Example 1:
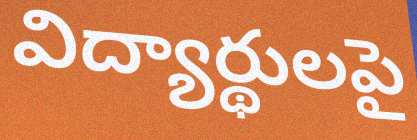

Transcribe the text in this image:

విద్యార్థులపై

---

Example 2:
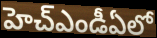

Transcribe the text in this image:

హెచ్ఎండీఏలో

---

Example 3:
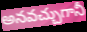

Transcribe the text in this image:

అనవచ్చుగానీ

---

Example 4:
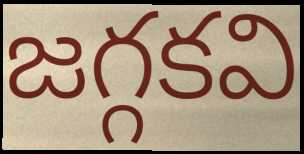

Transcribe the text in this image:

జగ్గకవి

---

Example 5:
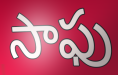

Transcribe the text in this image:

సాఫు